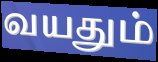
வயதும்